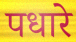
पधारे